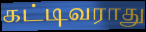
கட்டிவராது